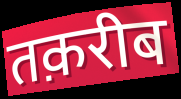
तक़रीब